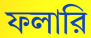
ফলারি